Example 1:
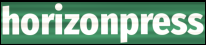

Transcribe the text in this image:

horizonpress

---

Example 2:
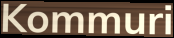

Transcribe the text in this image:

Kommuri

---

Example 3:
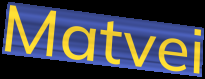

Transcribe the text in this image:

Matvei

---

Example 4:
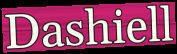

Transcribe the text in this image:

Dashiell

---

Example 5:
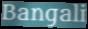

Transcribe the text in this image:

Bangali